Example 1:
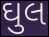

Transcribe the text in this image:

ઘુલ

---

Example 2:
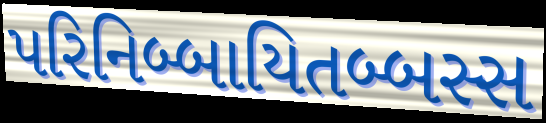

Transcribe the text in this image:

પરિનિબ્બાયિતબ્બસ્સ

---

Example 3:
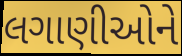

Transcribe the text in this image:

લગાણીઓને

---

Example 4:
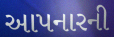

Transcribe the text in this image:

આપનારની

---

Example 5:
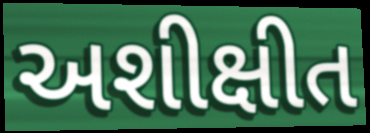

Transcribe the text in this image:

અશીક્ષીત